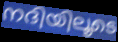
നദിയിലൂടെ